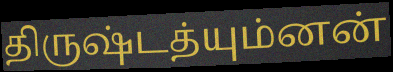
திருஷ்டத்யும்னன்